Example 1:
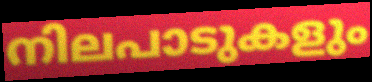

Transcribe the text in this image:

നിലപാടുകളും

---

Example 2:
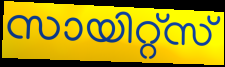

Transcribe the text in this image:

സായിറ്റ്സ്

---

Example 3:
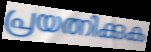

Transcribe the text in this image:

പ്രയത്നിക്കുക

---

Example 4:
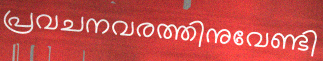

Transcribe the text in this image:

പ്രവചനവരത്തിനുവേണ്ടി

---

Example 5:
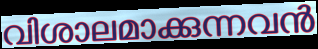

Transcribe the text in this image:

വിശാലമാക്കുന്നവൻ